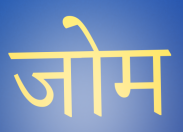
जोम